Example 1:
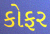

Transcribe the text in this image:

કોફર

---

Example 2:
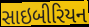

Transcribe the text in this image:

સાઇબીરિયન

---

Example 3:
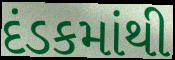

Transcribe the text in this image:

દંડકમાંથી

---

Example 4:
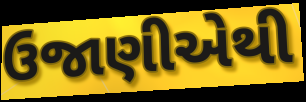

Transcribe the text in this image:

ઉજાણીએથી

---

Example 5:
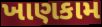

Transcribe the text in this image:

ખાણકામ